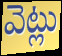
వెట్లు